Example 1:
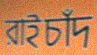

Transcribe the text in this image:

রাইচাঁদ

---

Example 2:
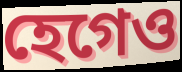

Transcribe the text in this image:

হেগেও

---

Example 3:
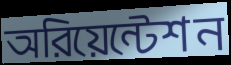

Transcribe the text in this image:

অরিয়েন্টেশন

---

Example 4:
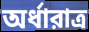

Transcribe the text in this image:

অর্ধারাত্র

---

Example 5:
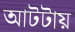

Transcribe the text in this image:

আটটায়